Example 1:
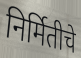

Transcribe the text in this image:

निर्मितीचे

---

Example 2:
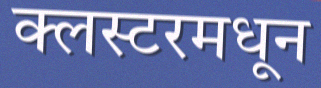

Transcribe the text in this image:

क्लस्टरमधून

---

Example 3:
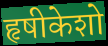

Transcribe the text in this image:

हृषीकेशो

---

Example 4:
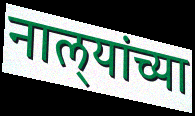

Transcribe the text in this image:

नाल्यांच्या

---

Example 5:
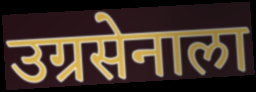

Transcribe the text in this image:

उग्रसेनाला